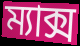
ম্যাক্স